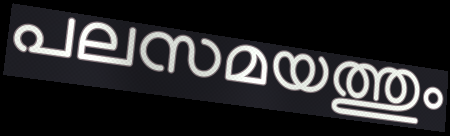
പലസമയത്തും